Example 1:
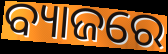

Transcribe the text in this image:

ବ୍ୟାଜରେ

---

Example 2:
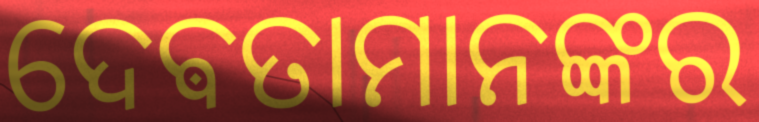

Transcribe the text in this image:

ଦେଵତାମାନଙ୍କର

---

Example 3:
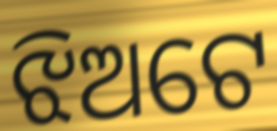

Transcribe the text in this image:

ଝିଅଟେ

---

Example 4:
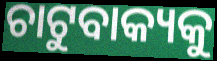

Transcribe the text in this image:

ଚାଟୁବାକ୍ୟକୁ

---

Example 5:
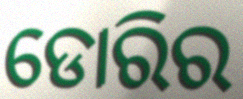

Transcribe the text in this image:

ଡୋରିର